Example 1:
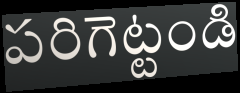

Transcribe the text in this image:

పరిగెట్టండి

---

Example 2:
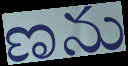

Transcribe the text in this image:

ణను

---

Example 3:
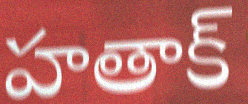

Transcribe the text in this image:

హతాక్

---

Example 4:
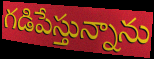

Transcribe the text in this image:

గడిపేస్తున్నాను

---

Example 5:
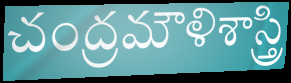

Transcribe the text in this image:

చంద్రమౌళిశాస్త్రి